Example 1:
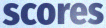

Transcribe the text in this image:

scores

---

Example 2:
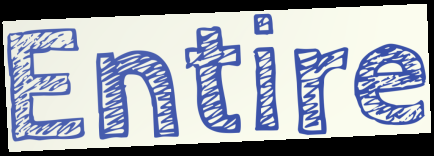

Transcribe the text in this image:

Entire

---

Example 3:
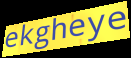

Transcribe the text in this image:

ekgheye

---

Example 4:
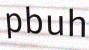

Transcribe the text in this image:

pbuh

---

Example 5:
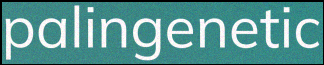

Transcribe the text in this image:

palingenetic